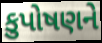
કુપોષણને